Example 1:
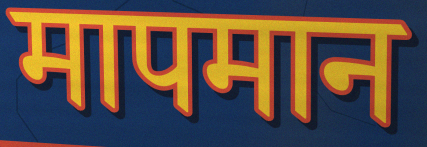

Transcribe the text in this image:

मापमान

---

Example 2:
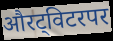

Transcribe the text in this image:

औरट्विटरपर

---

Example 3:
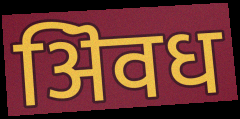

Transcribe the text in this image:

ऄिवध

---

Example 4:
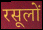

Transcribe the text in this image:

रसूलों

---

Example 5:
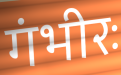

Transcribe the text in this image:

गंभीरः